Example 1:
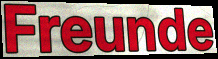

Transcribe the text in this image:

Freunde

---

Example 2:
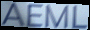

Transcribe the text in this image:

AEML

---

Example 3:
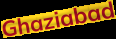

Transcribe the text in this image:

Ghaziabad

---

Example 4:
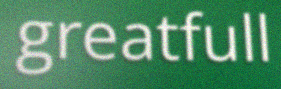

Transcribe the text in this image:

greatfull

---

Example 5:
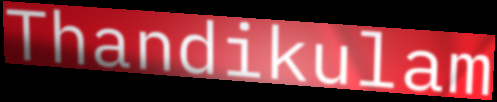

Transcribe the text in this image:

Thandikulam